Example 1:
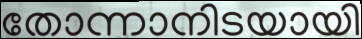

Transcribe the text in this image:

തോന്നാനിടയായി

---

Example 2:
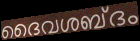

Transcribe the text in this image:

ദൈവശബ്ദം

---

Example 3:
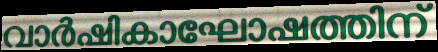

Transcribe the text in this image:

വാർഷികാഘോഷത്തിന്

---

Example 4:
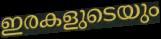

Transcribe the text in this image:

ഇരകളുടെയും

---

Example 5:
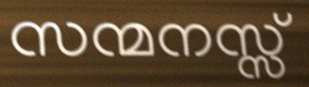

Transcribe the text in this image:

സന്മനസ്സ്